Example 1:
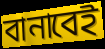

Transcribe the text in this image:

বানাবেই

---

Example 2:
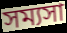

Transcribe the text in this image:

সম্যসা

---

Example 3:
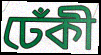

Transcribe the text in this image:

ঢেঁকী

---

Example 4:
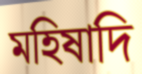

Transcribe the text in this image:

মহিষাদি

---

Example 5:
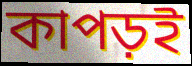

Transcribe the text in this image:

কাপড়ই